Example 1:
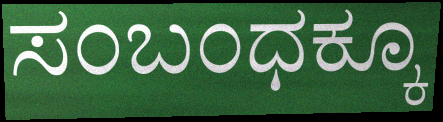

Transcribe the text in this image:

ಸಂಬಂಧಕ್ಕೂ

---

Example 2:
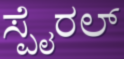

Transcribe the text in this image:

ಸ್ಪೈರಲ್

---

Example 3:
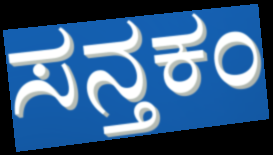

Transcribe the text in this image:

ಸನ್ತಕಂ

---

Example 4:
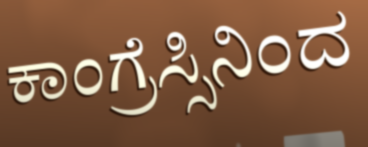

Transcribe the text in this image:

ಕಾಂಗ್ರೆಸ್ಸಿನಿಂದ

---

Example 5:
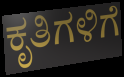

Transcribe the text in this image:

ಕೃತಿಗಳಿಗೆ